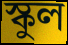
স্কুল